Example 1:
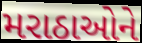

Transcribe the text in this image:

મરાઠાઓને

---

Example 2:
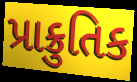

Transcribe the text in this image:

પ્રાક્રુતિક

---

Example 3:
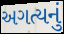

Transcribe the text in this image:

અગત્યનું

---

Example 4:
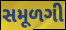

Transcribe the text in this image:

સમૂળગી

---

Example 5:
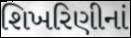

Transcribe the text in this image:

શિખરિણીનાં